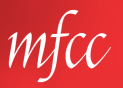
mfcc